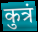
कुत्रं